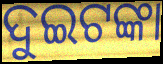
ଦୁଇଟଙ୍କା